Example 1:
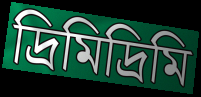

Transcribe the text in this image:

দ্রিমিদ্রিমি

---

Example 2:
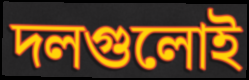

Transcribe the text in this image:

দলগুলোই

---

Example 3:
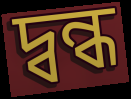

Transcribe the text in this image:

দ্বন্ধ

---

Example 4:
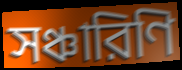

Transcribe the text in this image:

সঞ্চারিণি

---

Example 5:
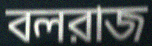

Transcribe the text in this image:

বলরাজ